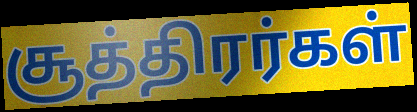
சூத்திரர்கள்